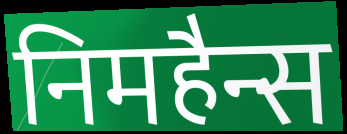
निमहैन्स